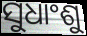
ସୁଧାଂଶୁ